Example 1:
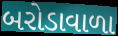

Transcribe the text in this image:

બરોડાવાળા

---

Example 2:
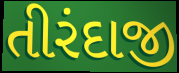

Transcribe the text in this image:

તીરંદાજી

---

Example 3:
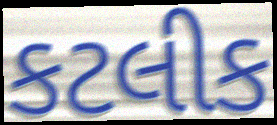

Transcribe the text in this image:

કટલીક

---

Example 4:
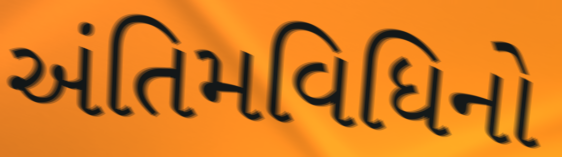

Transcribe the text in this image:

અંતિમવિધિનો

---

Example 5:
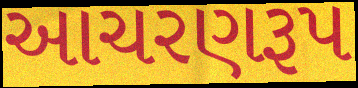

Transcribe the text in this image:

આચરણરૂપ